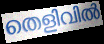
തെളിവിൽ